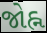
જોહ્ન